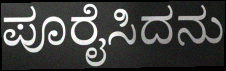
ಪೂರೈಸಿದನು